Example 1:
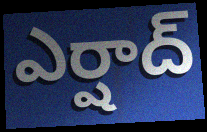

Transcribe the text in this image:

ఎర్షాద్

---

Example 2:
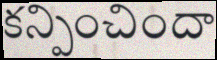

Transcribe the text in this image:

కన్పించిందా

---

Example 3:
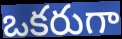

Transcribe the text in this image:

ఒకరుగా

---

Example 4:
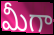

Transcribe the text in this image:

మీగా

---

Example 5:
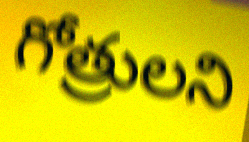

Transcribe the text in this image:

గోత్రులని